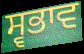
ਸ੍ਵਭਾਵ